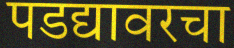
पडद्यावरचा